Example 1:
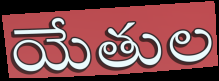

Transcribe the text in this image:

యేతుల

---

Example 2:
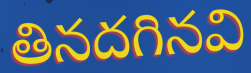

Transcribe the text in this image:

తినదగినవి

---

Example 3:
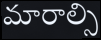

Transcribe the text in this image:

మారాల్సి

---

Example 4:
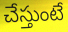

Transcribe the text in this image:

చేస్తుంటే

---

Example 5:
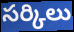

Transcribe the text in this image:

సర్కిలు